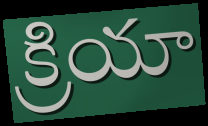
క్రియా